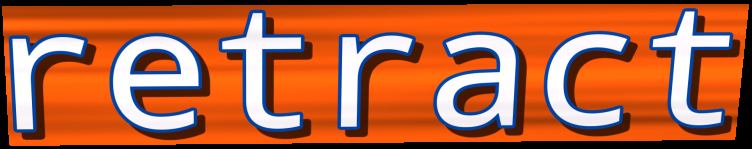
retract